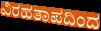
ವಿರಹತಾಪದಿಂದ